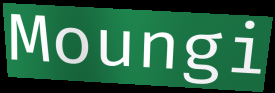
Moungi